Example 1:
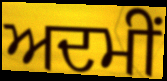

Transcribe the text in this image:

ਅਦਮੀਂ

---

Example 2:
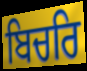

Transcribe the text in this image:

ਬਿਚਰਿ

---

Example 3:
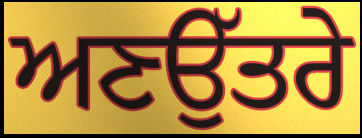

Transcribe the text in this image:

ਅਣਉੱਤਰੇ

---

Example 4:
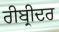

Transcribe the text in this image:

ਰੀਬ੍ਰੀਦਰ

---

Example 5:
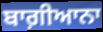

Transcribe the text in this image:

ਬਾਗ਼ੀਆਨਾ